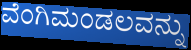
ವೆಂಗಿಮಂಡಲವನ್ನು